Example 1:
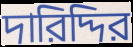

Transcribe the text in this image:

দারিদ্দির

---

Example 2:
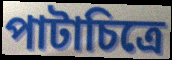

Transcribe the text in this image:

পাটাচিত্রে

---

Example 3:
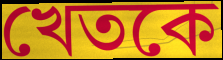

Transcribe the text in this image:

খেতকে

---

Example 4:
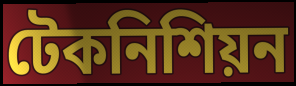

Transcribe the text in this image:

টেকনিশিয়ন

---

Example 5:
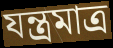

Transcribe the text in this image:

যন্ত্রমাত্র